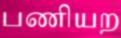
பணியற